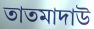
তাতমাদাউ